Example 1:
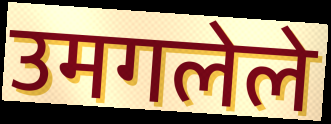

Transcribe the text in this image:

उमगलेले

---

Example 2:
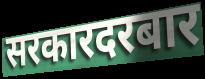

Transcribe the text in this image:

सरकारदरबार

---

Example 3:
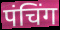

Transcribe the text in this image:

पंचिंग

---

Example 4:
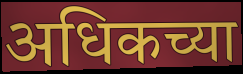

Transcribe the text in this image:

अधिकच्या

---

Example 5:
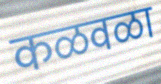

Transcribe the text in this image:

कळवळा